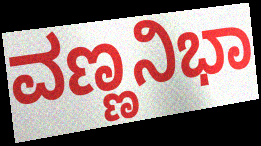
ವಣ್ಣನಿಭಾ